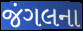
જંગલના